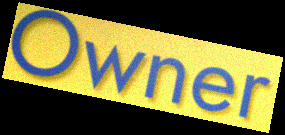
Owner